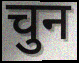
चुन